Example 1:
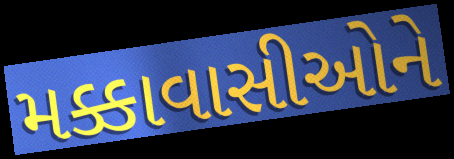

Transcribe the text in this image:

મક્કાવાસીઓને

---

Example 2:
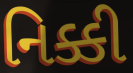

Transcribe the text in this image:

નિક્કી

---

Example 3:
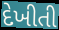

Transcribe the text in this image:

દેખીતી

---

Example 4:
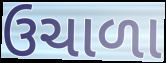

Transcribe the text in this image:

ઉચાળા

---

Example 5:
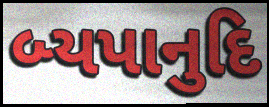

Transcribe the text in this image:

બ્યપાનુદિ